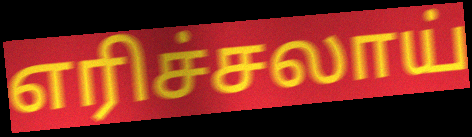
எரிச்சலாய்